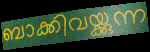
ബാക്കിവയ്ക്കുന്ന